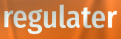
regulater